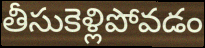
తీసుకెళ్లిపోవడం